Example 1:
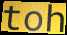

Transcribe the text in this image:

toh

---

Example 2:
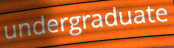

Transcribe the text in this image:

undergraduate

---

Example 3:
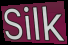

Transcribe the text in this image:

Silk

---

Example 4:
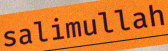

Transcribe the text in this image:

salimullah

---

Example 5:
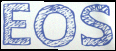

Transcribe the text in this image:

EOS